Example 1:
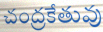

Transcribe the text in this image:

చంద్రకేతువు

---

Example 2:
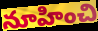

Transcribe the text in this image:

నూహించి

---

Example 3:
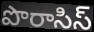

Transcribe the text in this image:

పొరాసిస్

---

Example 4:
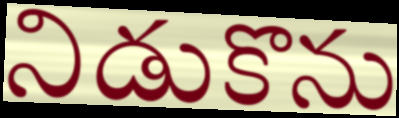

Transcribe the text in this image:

నిడుకొను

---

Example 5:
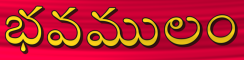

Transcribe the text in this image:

భవములం